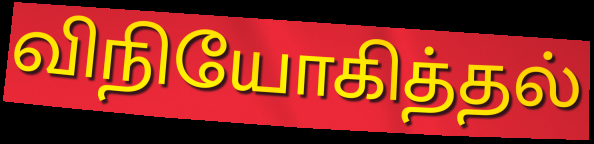
விநியோகித்தல்